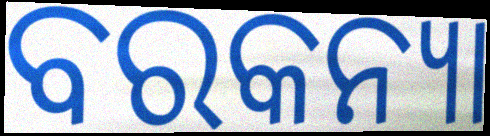
ବରକନ୍ୟା